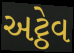
અટ્ઠેવ